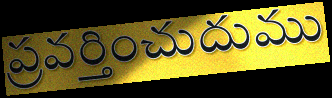
ప్రవర్తించుదుము